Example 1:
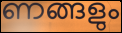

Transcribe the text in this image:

ണങ്ങളും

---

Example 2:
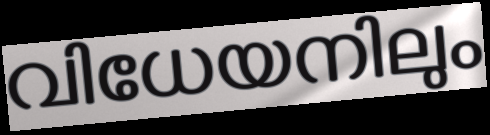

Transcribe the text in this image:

വിധേയനിലും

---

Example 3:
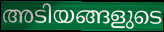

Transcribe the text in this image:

അടിയങ്ങളുടെ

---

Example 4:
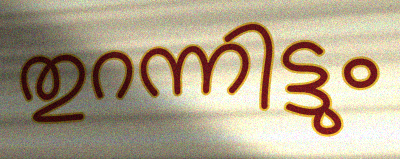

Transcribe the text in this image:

തുറന്നിട്ടും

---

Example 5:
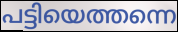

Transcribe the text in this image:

പട്ടിയെത്തന്നെ